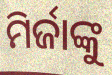
ମିର୍ଜାଙ୍କୁ